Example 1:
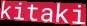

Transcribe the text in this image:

kitaki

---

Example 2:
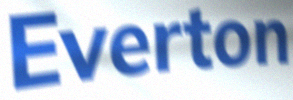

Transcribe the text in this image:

Everton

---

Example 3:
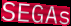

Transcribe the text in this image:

SEGAs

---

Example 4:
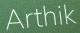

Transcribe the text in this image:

Arthik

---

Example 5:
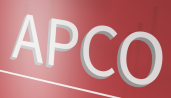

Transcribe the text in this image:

APCO